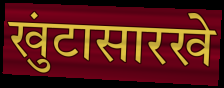
खुंटासारखे